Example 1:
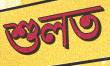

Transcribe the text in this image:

শুলত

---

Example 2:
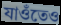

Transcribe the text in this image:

যাওঁতেও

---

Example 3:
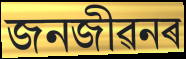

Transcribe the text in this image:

জনজীৱনৰ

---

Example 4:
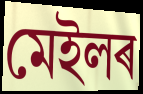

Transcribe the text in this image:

মেইলৰ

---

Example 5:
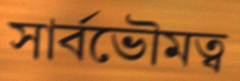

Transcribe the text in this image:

সাৰ্বভৌমত্ব